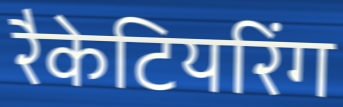
रैकेटियरिंग